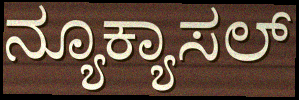
ನ್ಯೂಕ್ಯಾಸಲ್